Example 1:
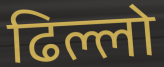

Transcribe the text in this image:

ढिल्लो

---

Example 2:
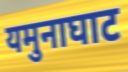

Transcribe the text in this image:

यमुनाघाट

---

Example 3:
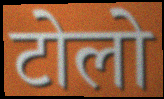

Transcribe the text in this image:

टोलो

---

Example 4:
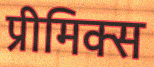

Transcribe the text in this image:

प्रीमिक्स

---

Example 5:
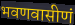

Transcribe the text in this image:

भवणवासीणं